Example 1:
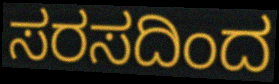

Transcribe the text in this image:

ಸರಸದಿಂದ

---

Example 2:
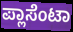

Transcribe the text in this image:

ಪ್ಲಾಸೆಂಟಾ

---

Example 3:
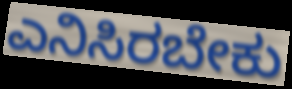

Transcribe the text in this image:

ಎನಿಸಿರಬೇಕು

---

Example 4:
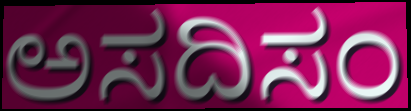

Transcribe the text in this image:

ಅಸದಿಸಂ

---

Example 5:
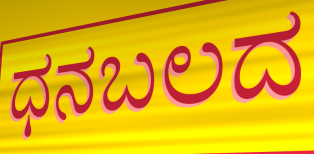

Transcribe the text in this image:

ಧನಬಲದ